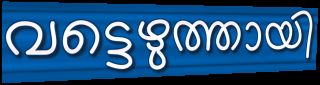
വട്ടെഴുത്തായി